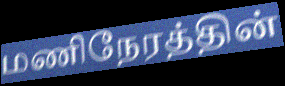
மணிநேரத்தின்